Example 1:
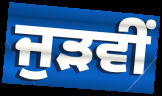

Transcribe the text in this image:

ਜੁੜਵੀਂ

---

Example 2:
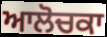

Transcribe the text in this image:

ਆਲੋਚਕਾ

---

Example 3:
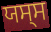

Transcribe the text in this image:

ਯਸ੍ਸ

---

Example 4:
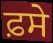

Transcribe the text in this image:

ਫ਼ਸੇ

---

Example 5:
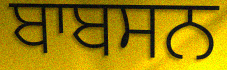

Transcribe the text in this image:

ਬਾਬਸਨ